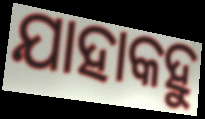
ଯାହାକହୁ